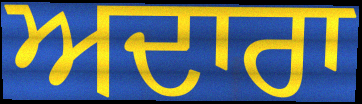
ਅਦਾਰਾ